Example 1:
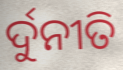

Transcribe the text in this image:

ର୍ଦୁନୀତି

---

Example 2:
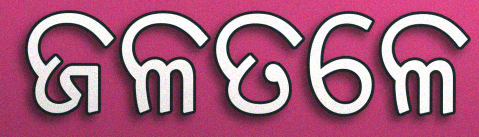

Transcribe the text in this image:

ଜଳତଳେ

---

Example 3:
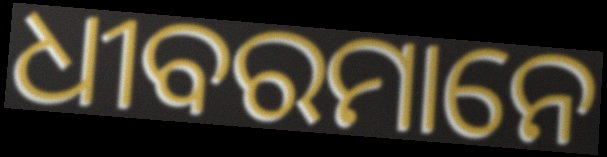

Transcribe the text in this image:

ଧୀବରମାନେ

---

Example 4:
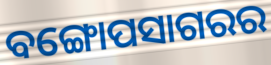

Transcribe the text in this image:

ବଙ୍ଗୋପସାଗରର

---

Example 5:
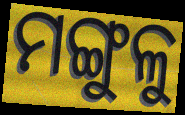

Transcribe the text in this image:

ମଙ୍ଗୁଳୁ